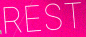
REST